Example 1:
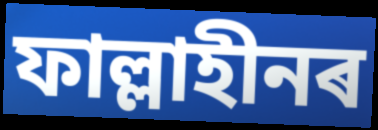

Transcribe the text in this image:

ফাল্লাহীনৰ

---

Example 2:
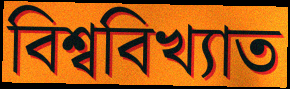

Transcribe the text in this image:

বিশ্ববিখ্যাত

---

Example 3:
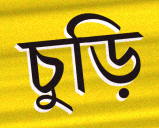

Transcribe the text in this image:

চুড়ি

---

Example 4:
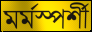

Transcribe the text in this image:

মৰ্মস্পৰ্শী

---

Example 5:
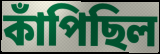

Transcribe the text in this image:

কাঁপিছিল